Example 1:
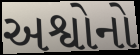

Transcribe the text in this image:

અશ્વોનો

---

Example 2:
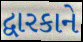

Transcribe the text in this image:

દ્વારકાને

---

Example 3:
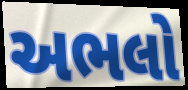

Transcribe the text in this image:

અભલો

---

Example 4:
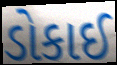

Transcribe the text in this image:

ડોકાઈ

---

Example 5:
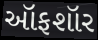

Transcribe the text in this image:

ઑફશૉર